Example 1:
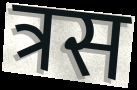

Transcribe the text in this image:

त्रस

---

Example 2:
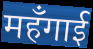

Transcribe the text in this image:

महँगाई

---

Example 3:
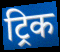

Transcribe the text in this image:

ट्रिक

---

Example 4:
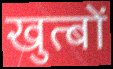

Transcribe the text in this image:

खुत्बों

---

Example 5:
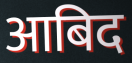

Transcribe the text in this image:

आबिद